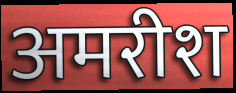
अमरीश